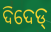
ଦିଦେଡ୍